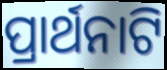
ପ୍ରାର୍ଥନାଟି